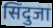
सिंदुजा